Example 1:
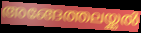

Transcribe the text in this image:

അങ്ങേത്തലയ്ക്കൽ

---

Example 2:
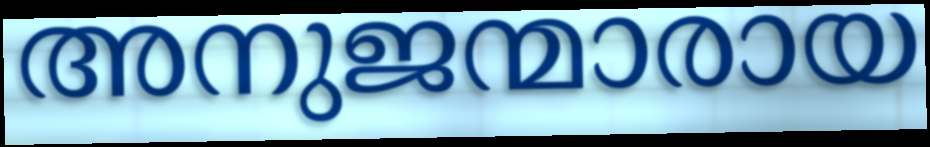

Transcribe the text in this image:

അനുജന്മാരായ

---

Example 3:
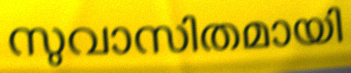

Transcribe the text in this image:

സുവാസിതമായി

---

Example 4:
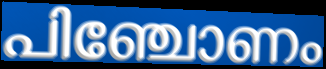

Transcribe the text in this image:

പിഞ്ചോണം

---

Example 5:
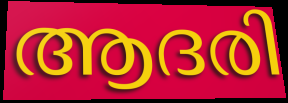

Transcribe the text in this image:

ആദരി